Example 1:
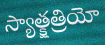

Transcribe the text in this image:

స్యాత్క్షత్రియో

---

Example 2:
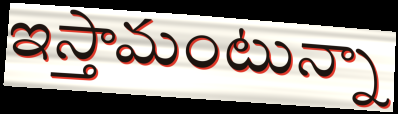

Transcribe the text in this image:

ఇస్తామంటున్నా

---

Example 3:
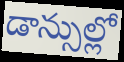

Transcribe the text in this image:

డాన్సుల్లో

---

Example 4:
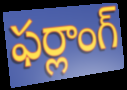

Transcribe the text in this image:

ఫర్లాంగ్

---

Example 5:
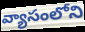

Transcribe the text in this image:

వ్యాసంలోని